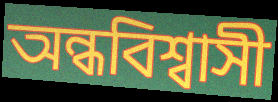
অন্ধবিশ্বাসী